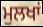
ਮੁਲਖਾਂ